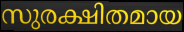
സുരക്ഷിതമായ